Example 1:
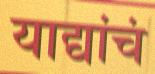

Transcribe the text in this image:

याद्यांचं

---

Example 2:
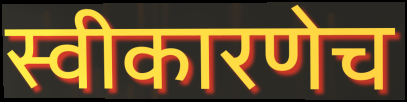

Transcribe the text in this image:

स्वीकारणेच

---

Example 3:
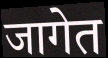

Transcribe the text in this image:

जागेत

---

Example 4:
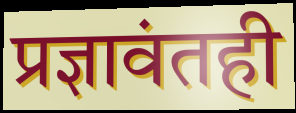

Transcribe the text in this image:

प्रज्ञावंतही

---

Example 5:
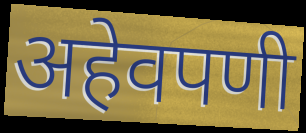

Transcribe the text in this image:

अहेवपणी